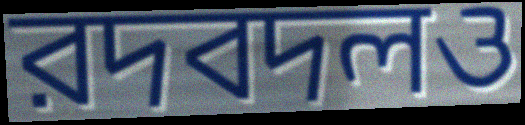
রদবদলও